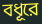
বধূরে